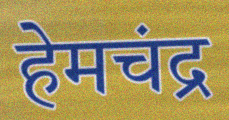
हेमचंद्र